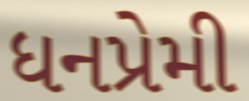
ધનપ્રેમી